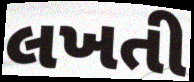
લખતી